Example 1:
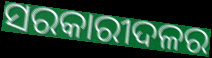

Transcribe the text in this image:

ସରକାରୀଦଳର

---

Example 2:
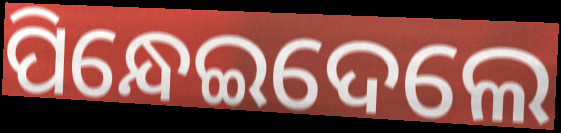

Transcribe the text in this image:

ପିନ୍ଧେଇଦେଲେ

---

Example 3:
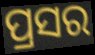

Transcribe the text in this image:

ପ୍ରସର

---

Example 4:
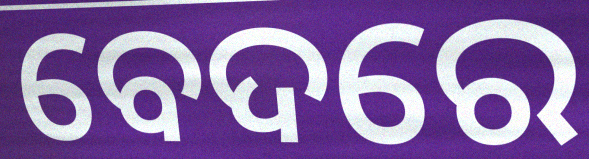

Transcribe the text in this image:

ବେଦରେ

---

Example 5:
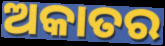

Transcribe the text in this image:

ଅକାତର